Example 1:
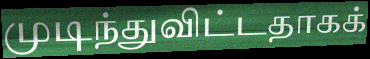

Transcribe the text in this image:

முடிந்துவிட்டதாகக்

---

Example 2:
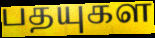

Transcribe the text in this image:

பதயுகள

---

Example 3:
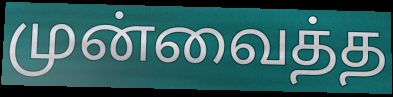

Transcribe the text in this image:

முன்வைத்த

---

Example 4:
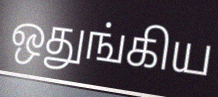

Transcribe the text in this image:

ஒதுங்கிய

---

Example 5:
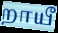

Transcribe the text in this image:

றாயீ